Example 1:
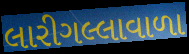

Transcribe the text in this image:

લારીગલ્લાવાળા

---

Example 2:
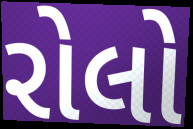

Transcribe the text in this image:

રોલો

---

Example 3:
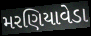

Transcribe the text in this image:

મરણિયાવેડા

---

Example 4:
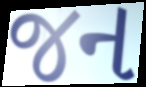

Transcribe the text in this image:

જન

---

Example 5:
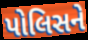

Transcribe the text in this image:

પોલિસને